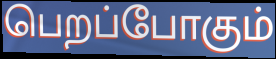
பெறப்போகும்